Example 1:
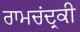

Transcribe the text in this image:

ਰਾਮਚਂਦ੍ਰਕੀ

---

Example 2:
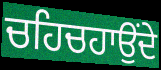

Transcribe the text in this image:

ਚਹਿਚਹਾਉਂਦੇ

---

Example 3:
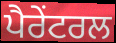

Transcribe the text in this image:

ਪੈਰੇਂਟਰਲ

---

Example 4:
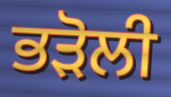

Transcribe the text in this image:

ਭੜੋਲੀ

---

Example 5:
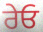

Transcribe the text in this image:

ਰੇਓ